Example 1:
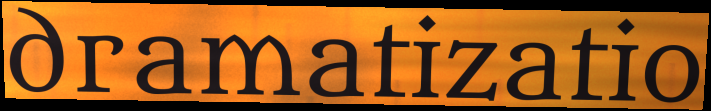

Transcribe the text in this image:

dramatizatio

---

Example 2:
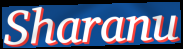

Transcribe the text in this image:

Sharanu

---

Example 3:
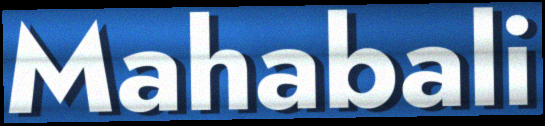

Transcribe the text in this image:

Mahabali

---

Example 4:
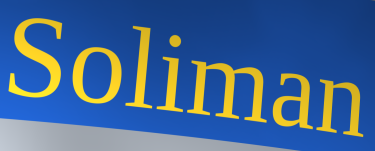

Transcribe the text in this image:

Soliman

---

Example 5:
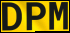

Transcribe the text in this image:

DPM